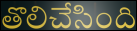
తొలిచేసింది